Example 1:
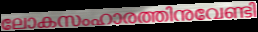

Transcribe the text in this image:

ലോകസംഹാരത്തിനുവേണ്ടി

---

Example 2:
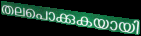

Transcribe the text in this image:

തലപൊക്കുകയായി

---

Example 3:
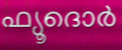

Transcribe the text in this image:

ഫ്യൂദൊർ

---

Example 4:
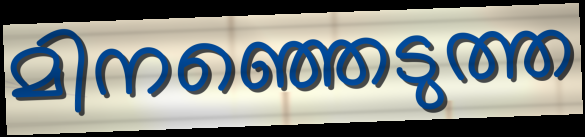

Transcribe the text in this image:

മിനഞ്ഞെടുത്ത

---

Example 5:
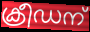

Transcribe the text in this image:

ക്രീഡന്